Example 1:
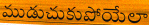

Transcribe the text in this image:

ముడుచుకుపోయేలా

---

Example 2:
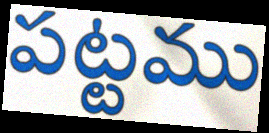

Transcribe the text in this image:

పట్టము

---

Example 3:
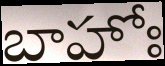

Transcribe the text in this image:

బాహోః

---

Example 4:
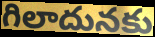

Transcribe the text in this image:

గిలాదునకు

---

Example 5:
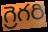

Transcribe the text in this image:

గ్రెగరి